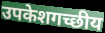
उपकेशगच्छीय